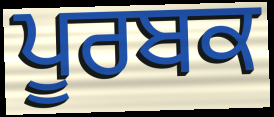
ਪੂਰਬਕ